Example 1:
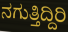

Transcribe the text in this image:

ನಗುತ್ತಿದ್ದಿರಿ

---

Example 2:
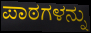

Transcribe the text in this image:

ಪಾಠಗಳನ್ನು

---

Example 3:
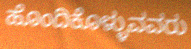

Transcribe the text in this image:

ಹೊಂದಿಕೊಳ್ಳುವವರು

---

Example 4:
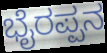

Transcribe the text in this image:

ಭೈರಪ್ಪನ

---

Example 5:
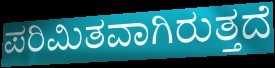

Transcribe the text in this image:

ಪರಿಮಿತವಾಗಿರುತ್ತದೆ